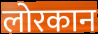
लोरकान